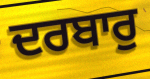
ਦਰਬਾਰੁ